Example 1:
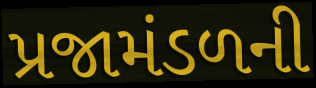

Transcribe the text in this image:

પ્રજામંડળની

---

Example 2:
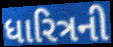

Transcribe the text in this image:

ધારિત્રની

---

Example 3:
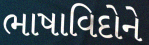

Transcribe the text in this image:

ભાષાવિદોને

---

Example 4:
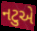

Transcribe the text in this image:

નટુએ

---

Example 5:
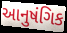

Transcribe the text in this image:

આનુષંગિક